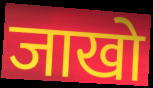
जाखो